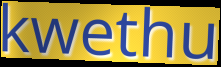
kwethu